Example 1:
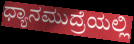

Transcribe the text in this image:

ಧ್ಯಾನಮುದ್ರೆಯಲ್ಲಿ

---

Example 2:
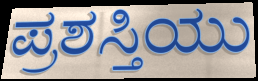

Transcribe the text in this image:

ಪ್ರಶಸ್ತಿಯು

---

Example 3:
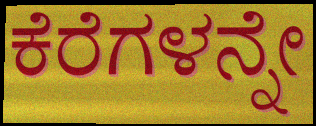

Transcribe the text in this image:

ಕೆರೆಗಳನ್ನೇ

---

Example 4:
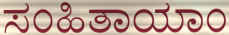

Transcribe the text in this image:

ಸಂಹಿತಾಯಾಂ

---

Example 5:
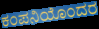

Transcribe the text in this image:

ಕಂಪನಿಯೊಂದರ